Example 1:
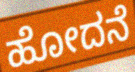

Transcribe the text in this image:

ಹೋದನೆ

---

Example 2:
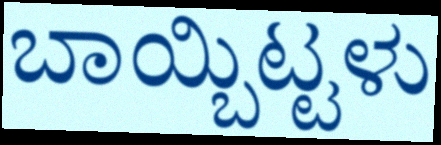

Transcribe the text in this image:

ಬಾಯ್ಬಿಟ್ಟಳು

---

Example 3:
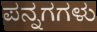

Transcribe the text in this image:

ಪನ್ನಗಗಳು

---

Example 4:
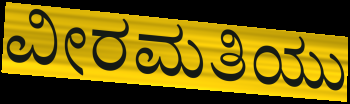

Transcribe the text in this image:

ವೀರಮತಿಯು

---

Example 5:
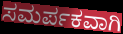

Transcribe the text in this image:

ಸಮರ್ಪಕವಾಗಿ